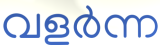
വളർന്ന